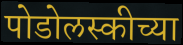
पोडोलस्कीच्या